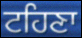
ਟਹਿਣਾ